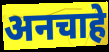
अनचाहे